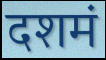
दशमं